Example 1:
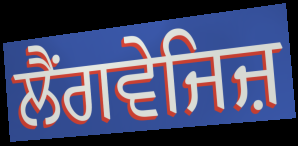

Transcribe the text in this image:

ਲੈਂਗਵੇਜਿਜ਼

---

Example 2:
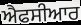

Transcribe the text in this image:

ਐਫਸੀਆਰ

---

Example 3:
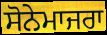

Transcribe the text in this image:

ਸੋਨੇਮਾਜਰਾ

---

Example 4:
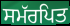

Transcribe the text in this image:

ਸਮੱਰਪਿਤ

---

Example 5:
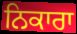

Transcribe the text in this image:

ਨਿਕਾਰਾ